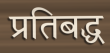
प्रतिबद्ध